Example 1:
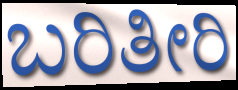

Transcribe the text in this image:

ಬರಿತೀರಿ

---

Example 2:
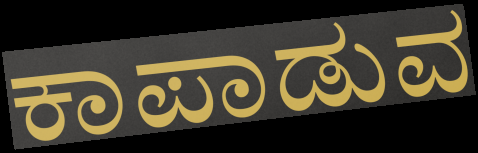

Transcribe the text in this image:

ಕಾಪಾಡುವ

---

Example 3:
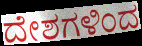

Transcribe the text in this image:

ದೇಶಗಳಿಂದ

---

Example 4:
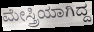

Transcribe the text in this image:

ಮೇಸ್ತ್ರಿಯಾಗಿದ್ದ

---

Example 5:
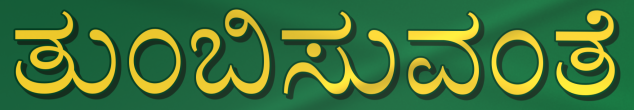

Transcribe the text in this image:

ತುಂಬಿಸುವಂತೆ